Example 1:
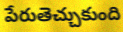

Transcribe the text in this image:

పేరుతెచ్చుకుంది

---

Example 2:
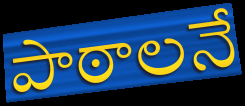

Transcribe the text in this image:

పాఠాలనే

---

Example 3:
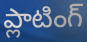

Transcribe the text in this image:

ప్లాటింగ్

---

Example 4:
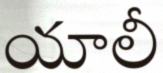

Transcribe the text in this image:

యాలీ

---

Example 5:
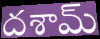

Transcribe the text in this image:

దశామ్